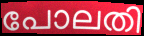
പോലതി